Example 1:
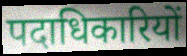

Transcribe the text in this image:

पदाधिकारियों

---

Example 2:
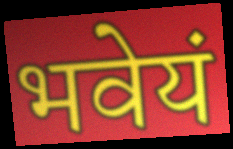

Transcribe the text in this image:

भवेयं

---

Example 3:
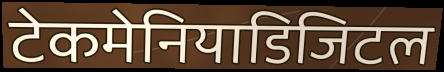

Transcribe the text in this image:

टेकमेनियाडिजिटल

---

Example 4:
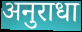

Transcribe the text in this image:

अनुराधा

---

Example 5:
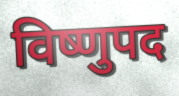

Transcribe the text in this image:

विष्णुपद